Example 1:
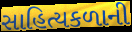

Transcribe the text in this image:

સાહિત્યકળાની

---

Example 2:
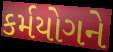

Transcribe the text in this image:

કર્મયોગને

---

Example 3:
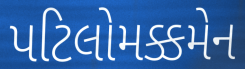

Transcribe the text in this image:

પટિલોમક્કમેન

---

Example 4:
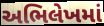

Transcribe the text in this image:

અભિલેખમાં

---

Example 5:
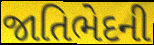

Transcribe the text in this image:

જાતિભેદની